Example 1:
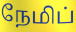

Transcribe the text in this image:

நேமிப்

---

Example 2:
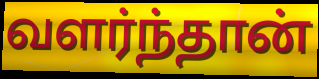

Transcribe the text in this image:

வளர்ந்தான்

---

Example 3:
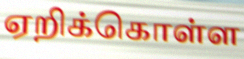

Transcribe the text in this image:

ஏறிக்கொள்ள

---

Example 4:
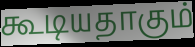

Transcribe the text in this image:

கூடியதாகும்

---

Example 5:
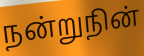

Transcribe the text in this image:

நன்றுநின்